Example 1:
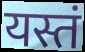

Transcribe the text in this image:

यस्तं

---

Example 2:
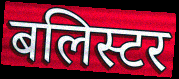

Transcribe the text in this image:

बलिस्टर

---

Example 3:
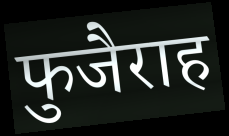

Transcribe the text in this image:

फुजैराह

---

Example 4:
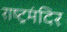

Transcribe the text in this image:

राष्ट्रमंदिर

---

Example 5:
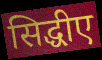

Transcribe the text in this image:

सिद्धीए